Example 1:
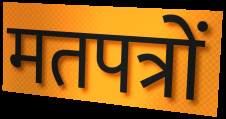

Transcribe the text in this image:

मतपत्रों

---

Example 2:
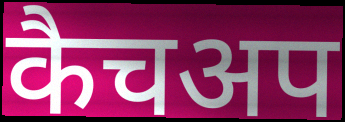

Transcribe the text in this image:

कैचअप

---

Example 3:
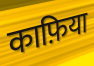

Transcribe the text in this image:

काफ़िया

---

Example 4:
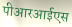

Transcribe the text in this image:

पीआरआईएस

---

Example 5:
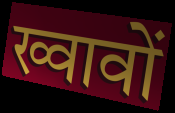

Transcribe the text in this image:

ख्वावों